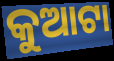
କୁଆଟା